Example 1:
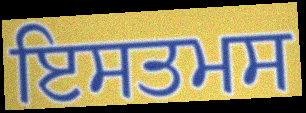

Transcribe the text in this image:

ਇਸਤਮਸ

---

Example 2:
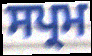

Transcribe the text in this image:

ਸਪ੍ਰਮ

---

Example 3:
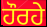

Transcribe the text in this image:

ਹੌਰਹੇ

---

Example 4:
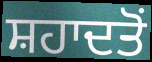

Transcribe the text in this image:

ਸ਼ਹਾਦਤੋਂ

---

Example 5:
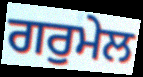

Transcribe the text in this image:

ਗਰੁਮੇਲ